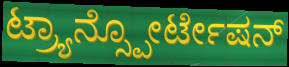
ಟ್ರ್ಯಾನ್ಸ್ಪೋರ್ಟೇಷನ್